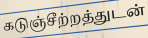
கடுஞ்சீற்றத்துடன்